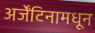
अर्जेंटिनामधून